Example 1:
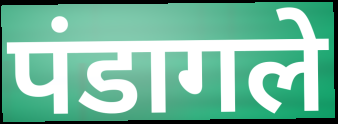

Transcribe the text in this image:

पंडागले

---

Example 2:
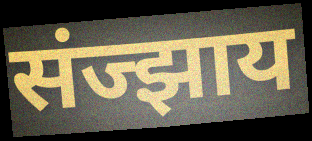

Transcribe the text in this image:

संज्झाय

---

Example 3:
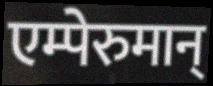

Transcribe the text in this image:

एम्पेरुमान्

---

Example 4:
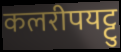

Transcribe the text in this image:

कलरीपयट्टु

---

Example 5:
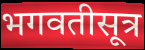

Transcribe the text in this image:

भगवतीसूत्र